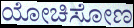
ಯೋಚಿಸೋಣ